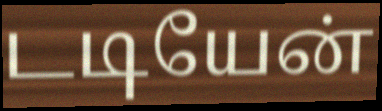
டடியேன்